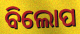
ବିଲୋପ